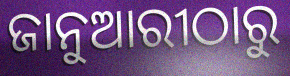
ଜାନୁଆରୀଠାରୁ